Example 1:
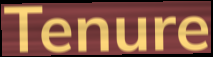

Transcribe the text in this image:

Tenure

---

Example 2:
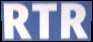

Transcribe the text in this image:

RTR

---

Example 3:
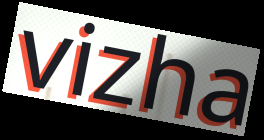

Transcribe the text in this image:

vizha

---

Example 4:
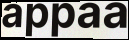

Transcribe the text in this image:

appaa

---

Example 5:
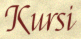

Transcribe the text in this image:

Kursi